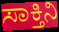
ಸಾಕ್ತಿನಿ